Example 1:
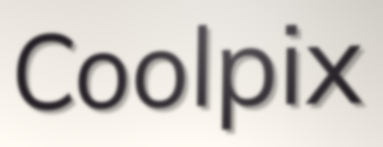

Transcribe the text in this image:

Coolpix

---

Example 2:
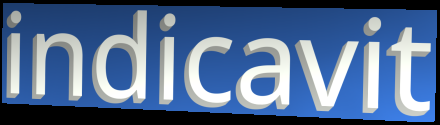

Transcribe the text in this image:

indicavit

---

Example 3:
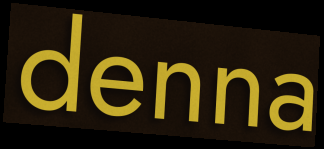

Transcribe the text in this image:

denna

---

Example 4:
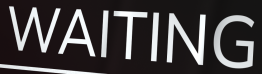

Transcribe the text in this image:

WAITING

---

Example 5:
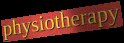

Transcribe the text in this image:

physiotherapy